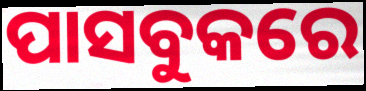
ପାସବୁକରେ